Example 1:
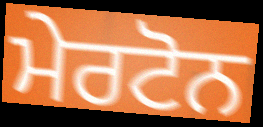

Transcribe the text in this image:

ਮੇਰਟੋਨ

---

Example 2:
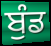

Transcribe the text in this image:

ਬੁੰਡ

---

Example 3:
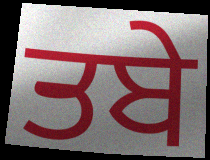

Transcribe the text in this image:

ਤਬੇ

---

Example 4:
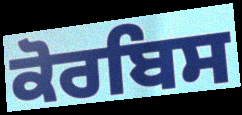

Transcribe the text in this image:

ਕੋਰਬਿਸ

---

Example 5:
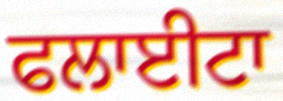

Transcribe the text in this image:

ਫਲਾਈਟਾ